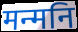
मन्मनि